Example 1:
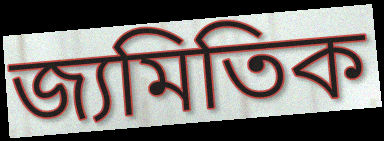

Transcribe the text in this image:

জ্যমিতিক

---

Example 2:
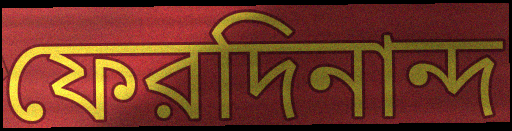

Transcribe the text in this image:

ফেরদিনান্দ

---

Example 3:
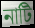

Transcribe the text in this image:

নাটি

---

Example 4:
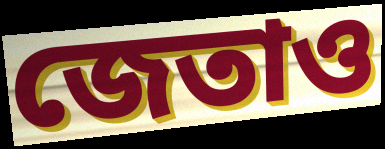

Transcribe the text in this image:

জেতাও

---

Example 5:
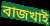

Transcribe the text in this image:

বাজখাই